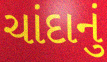
ચાંદાનું